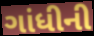
ગાંધીની